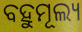
ବହୁମୂଲ୍ୟ